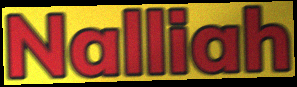
Nalliah